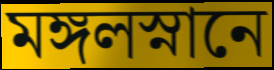
মঙ্গলস্নানে